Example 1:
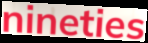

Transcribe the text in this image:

nineties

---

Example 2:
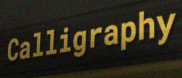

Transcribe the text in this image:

Calligraphy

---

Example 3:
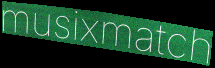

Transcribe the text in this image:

musixmatch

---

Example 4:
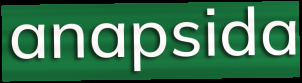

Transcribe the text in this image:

anapsida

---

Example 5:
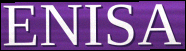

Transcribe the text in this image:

ENISA